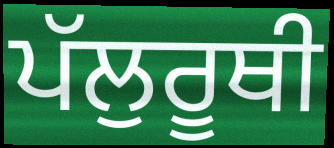
ਪੱਲੁਰੂਥੀ